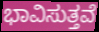
ಭಾವಿಸುತ್ತವೆ